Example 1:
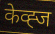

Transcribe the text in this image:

केव्ह्ज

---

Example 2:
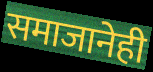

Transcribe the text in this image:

समाजानेही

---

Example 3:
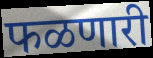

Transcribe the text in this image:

फळणारी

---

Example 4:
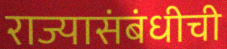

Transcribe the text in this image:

राज्यासंबंधीची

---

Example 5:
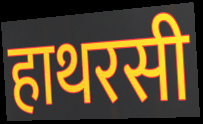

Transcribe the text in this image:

हाथरसी